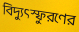
বিদ্যুৎস্ফুরণের